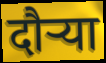
दौऱ्या